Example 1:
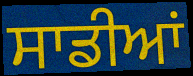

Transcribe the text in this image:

ਸਾਡੀਆਂ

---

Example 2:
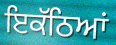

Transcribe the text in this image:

ਇਕੱਠਿਆਂ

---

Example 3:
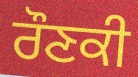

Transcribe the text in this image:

ਰੌਣਕੀ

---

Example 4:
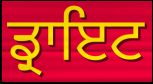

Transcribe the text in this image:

ਡ੍ਰਾਇਟ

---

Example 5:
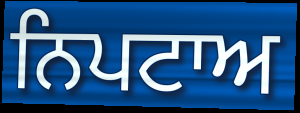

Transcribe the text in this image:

ਨਿਪਟਾਅ